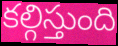
కల్గిస్తుంది